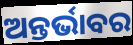
ଅନ୍ତର୍ଭାବର